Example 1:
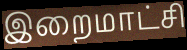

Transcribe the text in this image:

இறைமாட்சி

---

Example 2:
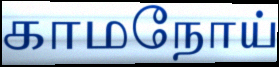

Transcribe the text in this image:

காமநோய்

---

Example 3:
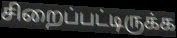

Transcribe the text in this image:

சிறைப்பட்டிருக்க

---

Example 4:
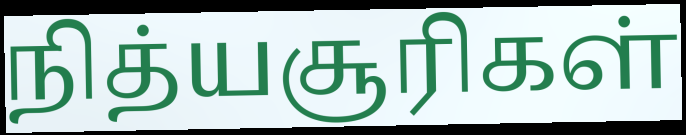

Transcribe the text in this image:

நித்யசூரிகள்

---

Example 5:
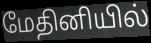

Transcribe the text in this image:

மேதினியில்